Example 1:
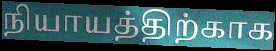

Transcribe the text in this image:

நியாயத்திற்காக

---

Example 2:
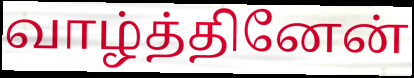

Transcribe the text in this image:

வாழ்த்தினேன்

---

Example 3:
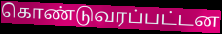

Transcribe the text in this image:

கொண்டுவரப்பட்டன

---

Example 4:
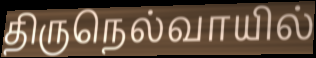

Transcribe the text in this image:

திருநெல்வாயில்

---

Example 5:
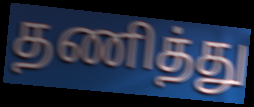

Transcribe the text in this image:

தணித்து